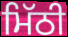
ਮਿੱਠੀ